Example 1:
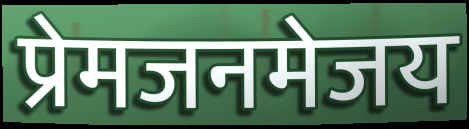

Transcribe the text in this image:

प्रेमजनमेजय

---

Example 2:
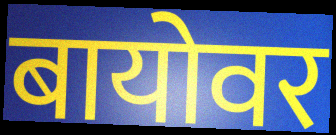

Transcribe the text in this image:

बायोवर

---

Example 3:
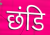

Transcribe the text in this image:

छंडि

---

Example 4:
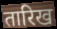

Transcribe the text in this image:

तारिख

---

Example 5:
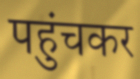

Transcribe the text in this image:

पहुंचकर